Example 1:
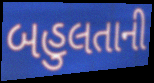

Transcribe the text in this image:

બહુલતાની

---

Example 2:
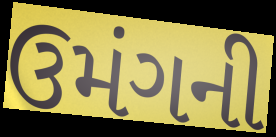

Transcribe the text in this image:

ઉમંગની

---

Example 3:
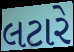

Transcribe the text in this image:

લટારે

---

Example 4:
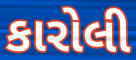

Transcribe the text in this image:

કારોલી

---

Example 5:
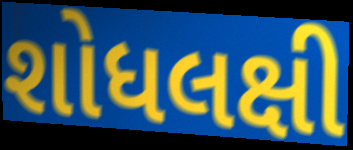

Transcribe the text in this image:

શોધલક્ષી